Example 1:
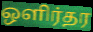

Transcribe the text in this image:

ஒளிர்தர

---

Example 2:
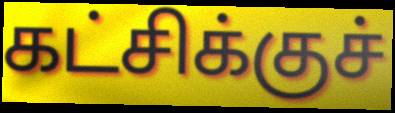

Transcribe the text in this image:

கட்சிக்குச்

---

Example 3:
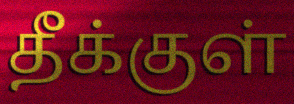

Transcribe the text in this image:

தீக்குள்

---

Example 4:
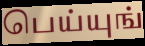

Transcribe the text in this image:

பெய்யுங்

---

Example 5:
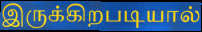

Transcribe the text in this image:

இருக்கிறபடியால்